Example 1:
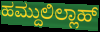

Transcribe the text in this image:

ಹಮ್ದುಲಿಲ್ಲಾಹ್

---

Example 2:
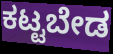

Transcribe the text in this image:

ಕಟ್ಟಬೇಡ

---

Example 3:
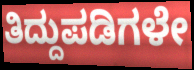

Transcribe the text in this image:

ತಿದ್ದುಪಡಿಗಳೇ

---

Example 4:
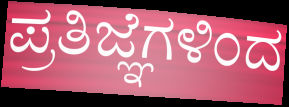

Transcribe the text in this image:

ಪ್ರತಿಜ್ಞೆಗಳಿಂದ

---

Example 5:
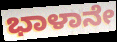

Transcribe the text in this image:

ಭಾಳಾನೇ